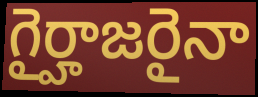
గైర్హాజరైనా